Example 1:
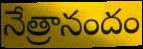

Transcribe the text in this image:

నేత్రానందం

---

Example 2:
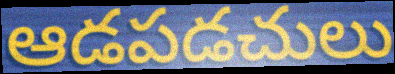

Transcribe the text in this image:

ఆడపడచులు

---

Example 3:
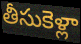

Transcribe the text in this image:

తీసుకెళ్లా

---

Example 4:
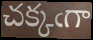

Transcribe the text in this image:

చక్కఁగా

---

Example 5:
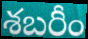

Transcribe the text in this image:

శబరీం